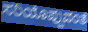
ಸರಿಯೊಪ್ಪುವಂತೆ